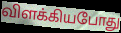
விளக்கியபோது